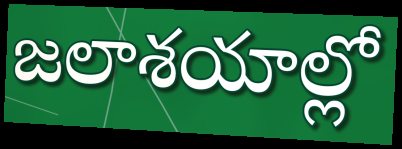
జలాశయాల్లో